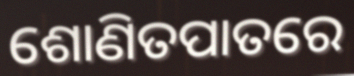
ଶୋଣିତପାତରେ